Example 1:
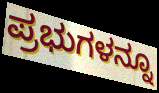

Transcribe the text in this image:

ಪ್ರಭುಗಳನ್ನೂ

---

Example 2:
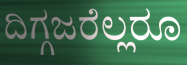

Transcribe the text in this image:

ದಿಗ್ಗಜರೆಲ್ಲರೂ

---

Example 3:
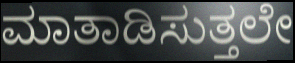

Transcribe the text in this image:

ಮಾತಾಡಿಸುತ್ತಲೇ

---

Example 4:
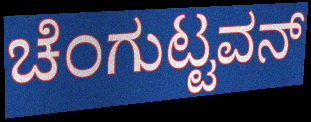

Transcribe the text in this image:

ಚೆಂಗುಟ್ಟವನ್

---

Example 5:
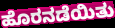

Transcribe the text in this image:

ಹೊರನಡೆಯಿತು